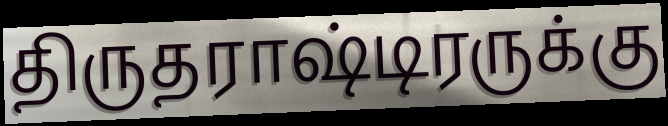
திருதராஷ்டிரருக்கு